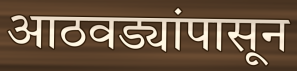
आठवड्यांपासून